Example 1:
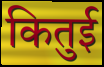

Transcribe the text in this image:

कितुई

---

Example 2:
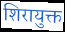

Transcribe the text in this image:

शिरायुक्त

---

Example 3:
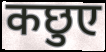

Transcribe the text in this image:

कछुए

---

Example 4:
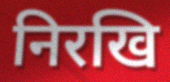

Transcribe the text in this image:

निरखि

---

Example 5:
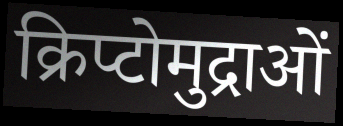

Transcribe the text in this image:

क्रिप्टोमुद्राओं